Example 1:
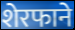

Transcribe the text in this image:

शेरफाने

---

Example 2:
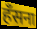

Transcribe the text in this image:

हँसना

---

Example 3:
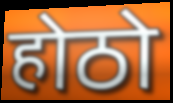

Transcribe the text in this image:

होठो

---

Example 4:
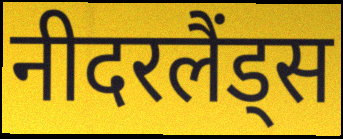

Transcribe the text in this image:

नीदरलैंड्स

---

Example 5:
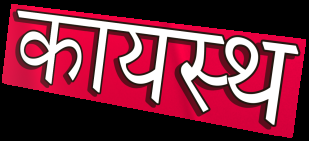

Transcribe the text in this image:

कायस्थ